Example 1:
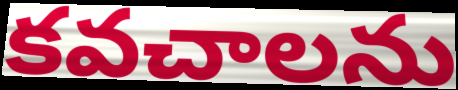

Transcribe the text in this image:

కవచాలను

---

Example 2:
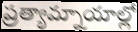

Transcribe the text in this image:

ప్రత్యామ్నాయాల్లో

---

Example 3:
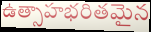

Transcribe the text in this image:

ఉత్సాహభరితమైన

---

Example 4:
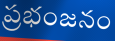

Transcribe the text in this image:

ప్రభంజనం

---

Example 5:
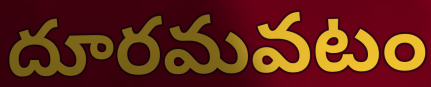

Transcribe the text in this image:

దూరమవటం